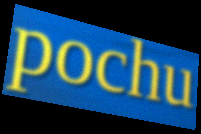
pochu